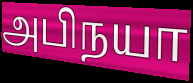
அபிநயா